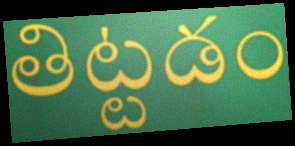
తిట్టడం